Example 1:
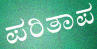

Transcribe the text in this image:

ಪರಿತಾಪ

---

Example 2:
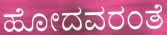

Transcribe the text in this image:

ಹೋದವರಂತೆ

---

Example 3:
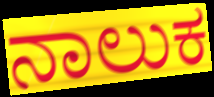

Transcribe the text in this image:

ನಾಲುಕ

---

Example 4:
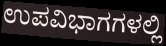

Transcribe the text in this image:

ಉಪವಿಭಾಗಗಳಲ್ಲಿ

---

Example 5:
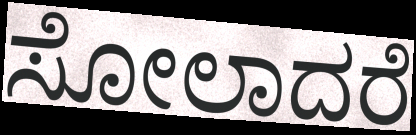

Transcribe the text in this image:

ಸೋಲಾದರೆ